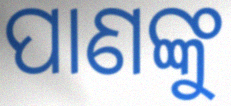
ପାଣଙ୍କୁ